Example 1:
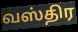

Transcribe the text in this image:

வஸ்திர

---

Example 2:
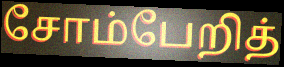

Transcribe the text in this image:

சோம்பேறித்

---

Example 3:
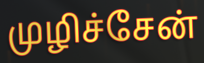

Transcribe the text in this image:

முழிச்சேன்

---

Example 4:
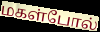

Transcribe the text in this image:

மகள்போல்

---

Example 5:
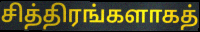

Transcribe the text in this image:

சித்திரங்களாகத்